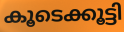
കൂടെക്കൂട്ടി